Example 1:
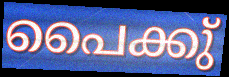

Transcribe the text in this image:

പൈക്കു്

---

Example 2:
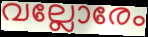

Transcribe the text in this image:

വല്ലോരേം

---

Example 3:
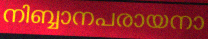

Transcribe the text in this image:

നിബ്ബാനപരായനാ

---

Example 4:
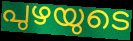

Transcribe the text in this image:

പുഴയുടെ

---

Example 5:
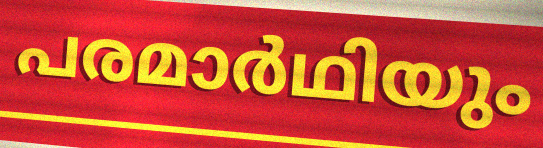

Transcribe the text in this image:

പരമാർഥിയും